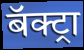
बॅक्ट्रा